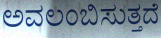
ಅವಲಂಬಿಸುತ್ತದೆ